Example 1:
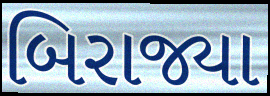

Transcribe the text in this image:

બિરાજ્યા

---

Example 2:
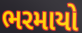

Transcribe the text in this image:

ભરમાયો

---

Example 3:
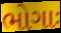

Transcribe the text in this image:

ભોગાઃ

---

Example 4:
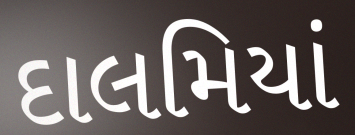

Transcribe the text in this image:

દાલમિયાં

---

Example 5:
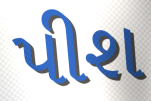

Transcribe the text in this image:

પીશ